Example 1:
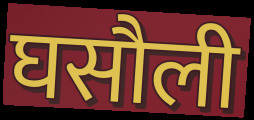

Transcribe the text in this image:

घसौली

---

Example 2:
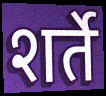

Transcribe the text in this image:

शर्ते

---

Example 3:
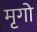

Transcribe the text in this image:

मृगो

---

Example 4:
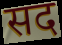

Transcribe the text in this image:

सद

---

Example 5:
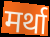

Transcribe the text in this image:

मर्था